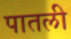
पातली